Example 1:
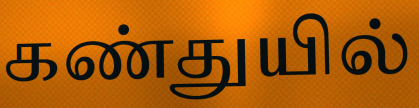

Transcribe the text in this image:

கண்துயில்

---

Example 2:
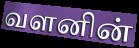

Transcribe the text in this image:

வளனின்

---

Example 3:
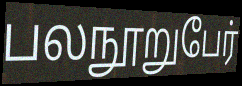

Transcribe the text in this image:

பலநூறுபேர்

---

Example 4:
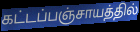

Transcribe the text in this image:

கட்டப்பஞ்சாயத்தில்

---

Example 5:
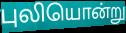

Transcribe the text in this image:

புலியொன்று